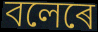
বলেৰে